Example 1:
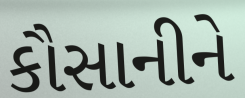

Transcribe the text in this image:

કૌસાનીને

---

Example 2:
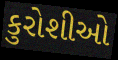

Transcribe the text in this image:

કુરોશીઓ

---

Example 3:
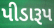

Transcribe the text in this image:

પીડારૂપ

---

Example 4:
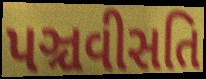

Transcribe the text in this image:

પઞ્ચવીસતિ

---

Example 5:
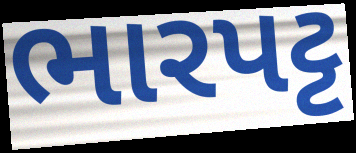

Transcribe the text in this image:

ભારપટ્ટ